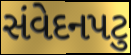
સંવેદનપટુ